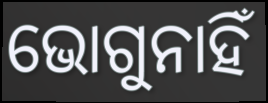
ଭୋଗୁନାହିଁ